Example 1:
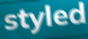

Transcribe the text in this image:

styled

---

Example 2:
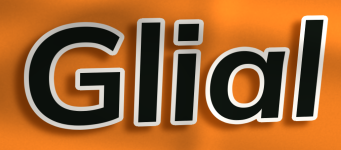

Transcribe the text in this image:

Glial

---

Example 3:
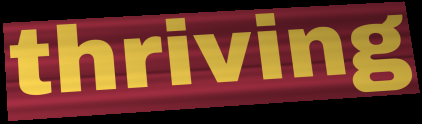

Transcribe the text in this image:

thriving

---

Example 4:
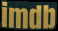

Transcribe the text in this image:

imdb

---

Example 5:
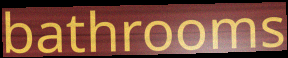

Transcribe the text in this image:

bathrooms